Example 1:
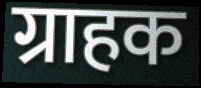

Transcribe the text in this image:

ग्राहक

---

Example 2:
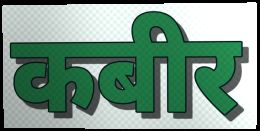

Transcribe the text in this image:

कबीर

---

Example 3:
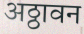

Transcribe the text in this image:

अठ्ठावन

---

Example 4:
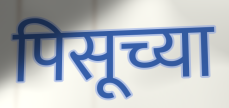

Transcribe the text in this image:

पिसूच्या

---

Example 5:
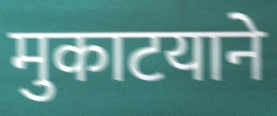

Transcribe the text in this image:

मुकाटयाने